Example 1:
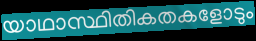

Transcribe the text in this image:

യാഥാസ്ഥിതികതകളോടും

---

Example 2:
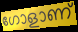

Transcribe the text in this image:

ഗോളാണ്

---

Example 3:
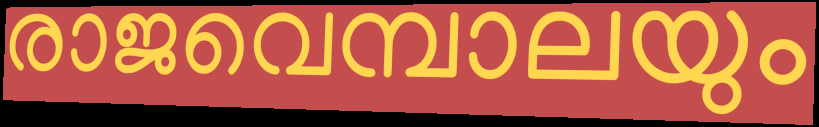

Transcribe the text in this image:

രാജവെമ്പാലയും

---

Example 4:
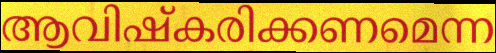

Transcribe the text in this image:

ആവിഷ്കരിക്കണമെന്ന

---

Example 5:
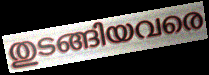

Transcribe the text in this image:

തുടങ്ങിയവരെ